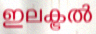
ഇലക്ട്രൽ